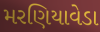
મરણિયાવેડા